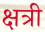
क्षत्री